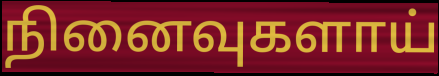
நினைவுகளாய்